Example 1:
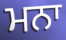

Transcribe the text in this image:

ਮਨਾ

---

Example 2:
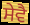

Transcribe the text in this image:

ਸੇਵੈ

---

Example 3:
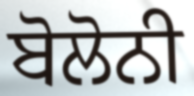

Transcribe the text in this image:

ਬੋਲੋਨੀ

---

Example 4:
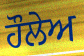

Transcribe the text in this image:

ਹੌਲੇਅ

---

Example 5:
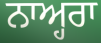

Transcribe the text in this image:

ਨਾਅ੍ਹਰਾ